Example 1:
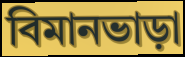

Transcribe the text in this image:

বিমানভাড়া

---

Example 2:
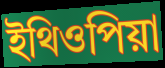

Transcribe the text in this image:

ইথিওপিয়া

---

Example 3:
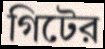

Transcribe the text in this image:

গিটের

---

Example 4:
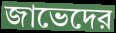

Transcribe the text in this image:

জাভেদের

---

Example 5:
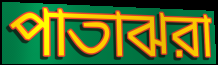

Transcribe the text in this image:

পাতাঝরা